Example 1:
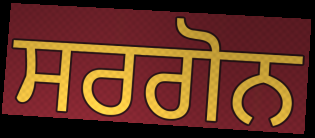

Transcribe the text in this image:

ਸਰਗੋਨ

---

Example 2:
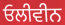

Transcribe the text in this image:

ਓਲੀਵੀਨ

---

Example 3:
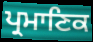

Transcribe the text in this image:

ਪ੍ਰਮਾਣਿਕ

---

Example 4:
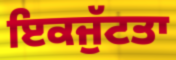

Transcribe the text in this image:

ਇਕਜੁੱਟਤਾ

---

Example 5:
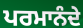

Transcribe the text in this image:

ਪਰਮਾਨੰਦੇ